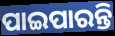
ପାଇପାରନ୍ତି